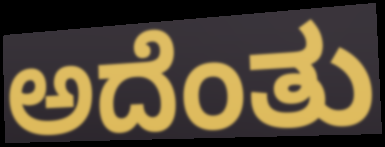
ಅದೆಂತು